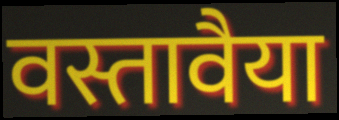
वस्तावैया